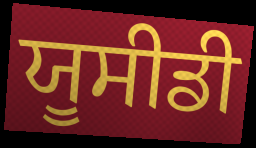
ਯੂਸੀਡੀ